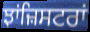
ਝਾਂਜ਼ਿਸਟਰਾਂ